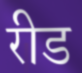
रीड